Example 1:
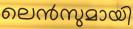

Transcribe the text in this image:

ലെൻസുമായി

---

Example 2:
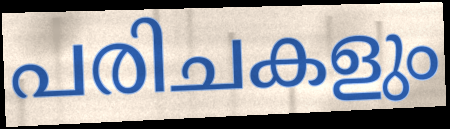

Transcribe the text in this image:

പരിചകളും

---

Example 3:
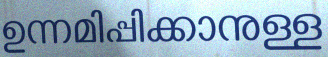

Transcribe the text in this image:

ഉന്നമിപ്പിക്കാനുള്ള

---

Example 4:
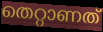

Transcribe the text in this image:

തെറ്റാണത്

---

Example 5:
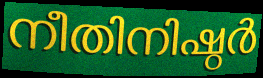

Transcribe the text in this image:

നീതിനിഷ്ഠർ